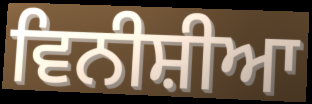
ਵਿਨੀਸ਼ੀਆ